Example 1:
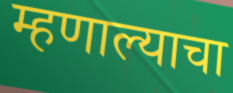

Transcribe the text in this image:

म्हणाल्याचा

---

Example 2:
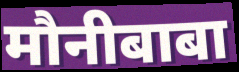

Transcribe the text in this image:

मौनीबाबा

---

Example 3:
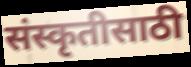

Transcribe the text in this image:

संस्कृतीसाठी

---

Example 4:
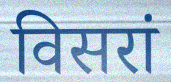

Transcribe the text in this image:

विसरां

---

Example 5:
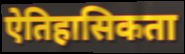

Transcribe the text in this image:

ऐतिहासिकता